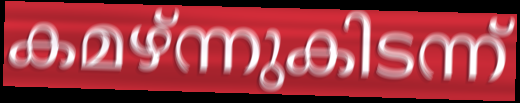
കമഴ്ന്നുകിടന്ന്